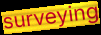
surveying